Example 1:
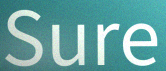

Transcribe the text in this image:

Sure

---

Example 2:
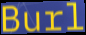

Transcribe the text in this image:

Burl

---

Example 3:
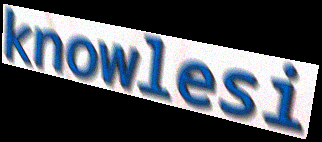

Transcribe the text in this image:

knowlesi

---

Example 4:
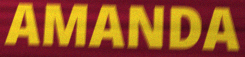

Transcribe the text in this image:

AMANDA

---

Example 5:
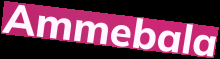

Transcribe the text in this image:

Ammebala